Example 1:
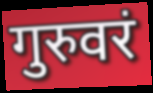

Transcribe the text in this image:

गुरुवरं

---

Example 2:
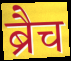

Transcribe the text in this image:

ब्रैच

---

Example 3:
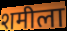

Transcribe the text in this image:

शमीला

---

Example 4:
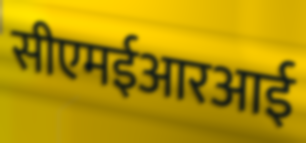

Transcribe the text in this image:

सीएमईआरआई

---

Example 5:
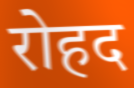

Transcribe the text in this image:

रोहद